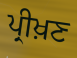
ਪ੍ਰੀਖ਼ਣ